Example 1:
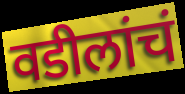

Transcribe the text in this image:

वडीलांचं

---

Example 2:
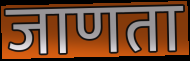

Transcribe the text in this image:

जाणता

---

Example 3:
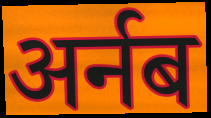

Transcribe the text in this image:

अर्नब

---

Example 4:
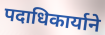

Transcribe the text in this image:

पदाधिकार्याने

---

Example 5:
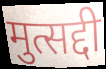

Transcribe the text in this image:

मुत्सद्दी